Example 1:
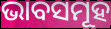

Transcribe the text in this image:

ଭାବସମୂହ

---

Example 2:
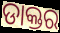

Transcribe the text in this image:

ଡାକ୍ତର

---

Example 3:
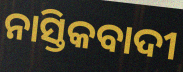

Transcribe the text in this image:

ନାସ୍ତିକବାଦୀ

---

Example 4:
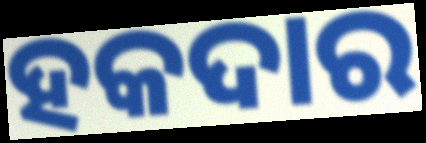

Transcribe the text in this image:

ହକଦାର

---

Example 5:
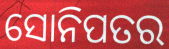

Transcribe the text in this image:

ସୋନିପତର